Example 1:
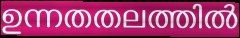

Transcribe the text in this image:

ഉന്നതതലത്തിൽ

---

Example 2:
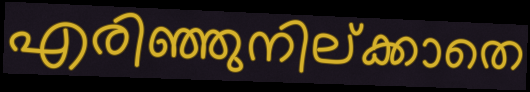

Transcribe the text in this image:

എരിഞ്ഞുനില്ക്കാതെ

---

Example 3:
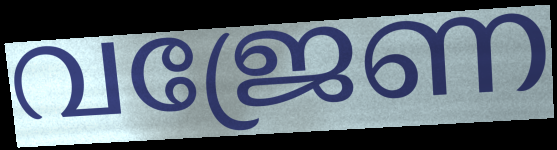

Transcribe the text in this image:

വജ്രേണ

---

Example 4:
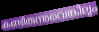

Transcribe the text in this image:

കണ്ടിരുന്നുവെങ്കിലും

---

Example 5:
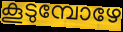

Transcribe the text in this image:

കൂടുമ്പോഴേ